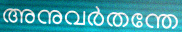
അനുവർതന്തേ